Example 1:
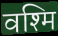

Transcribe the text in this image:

वश्मि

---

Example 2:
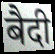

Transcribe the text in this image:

बैदी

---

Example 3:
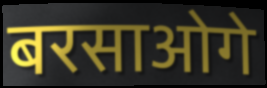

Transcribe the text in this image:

बरसाओगे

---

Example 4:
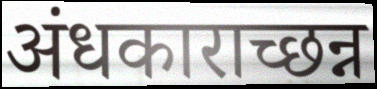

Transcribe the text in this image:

अंधकाराच्छन्न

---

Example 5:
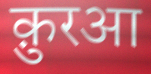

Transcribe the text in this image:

क़ुरआ